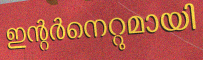
ഇന്റർനെറ്റുമായി